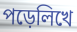
পড়েলিখে